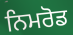
ਨਿਮਰੋਡ